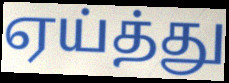
ஏய்த்து